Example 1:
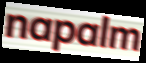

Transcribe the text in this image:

napalm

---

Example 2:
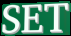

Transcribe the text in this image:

SET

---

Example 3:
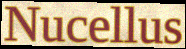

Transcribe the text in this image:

Nucellus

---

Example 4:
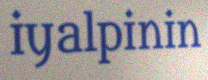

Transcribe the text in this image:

iyalpinin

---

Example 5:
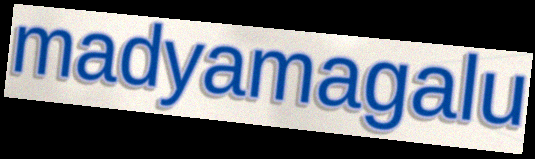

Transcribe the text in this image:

madyamagalu